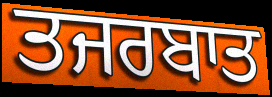
ਤਜਰਬਾਤ